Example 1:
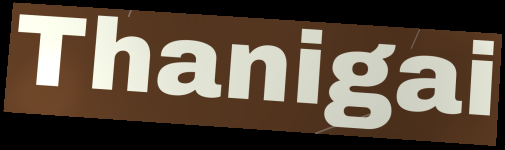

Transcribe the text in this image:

Thanigai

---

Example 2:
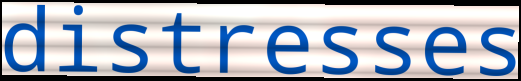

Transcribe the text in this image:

distresses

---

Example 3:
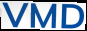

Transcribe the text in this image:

VMD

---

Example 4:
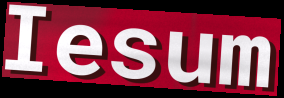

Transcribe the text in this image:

Iesum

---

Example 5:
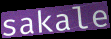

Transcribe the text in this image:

sakale